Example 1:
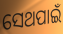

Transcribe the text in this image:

ସେଥପାଇଁ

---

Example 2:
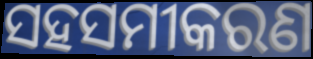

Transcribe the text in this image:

ସହସମୀକରଣ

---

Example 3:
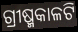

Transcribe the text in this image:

ଗ୍ରୀଷ୍ମକାଳଟି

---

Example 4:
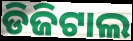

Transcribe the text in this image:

ଡିଜିଟାଲ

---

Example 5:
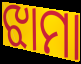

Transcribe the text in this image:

ଝାମା